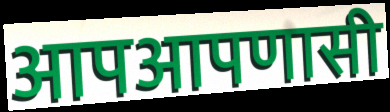
आपआपणासी